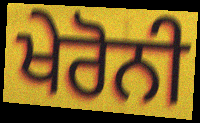
ਖੇਰੋਨੀ